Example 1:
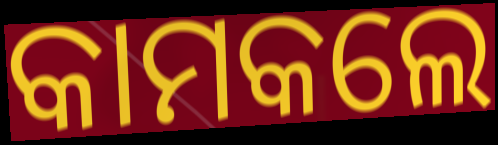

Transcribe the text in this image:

କାମକଲେ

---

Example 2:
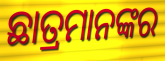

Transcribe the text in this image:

ଛାତ୍ରମାନଙ୍କର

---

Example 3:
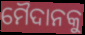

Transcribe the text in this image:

ମୈଦାନକୁ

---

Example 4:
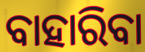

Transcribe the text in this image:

ବାହାରିବା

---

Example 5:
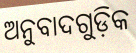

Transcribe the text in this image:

ଅନୁବାଦଗୁଡ଼ିକ